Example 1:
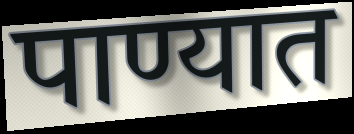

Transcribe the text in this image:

पाण्यात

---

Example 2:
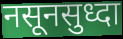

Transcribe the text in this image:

नसूनसुध्दा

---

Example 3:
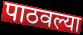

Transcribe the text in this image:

पाठवल्या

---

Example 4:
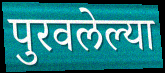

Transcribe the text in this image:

पुरवलेल्या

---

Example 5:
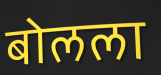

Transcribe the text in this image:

बोलला